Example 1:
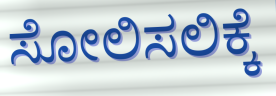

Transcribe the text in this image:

ಸೋಲಿಸಲಿಕ್ಕೆ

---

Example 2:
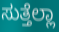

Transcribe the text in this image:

ಸುತ್ತೆಲ್ಲಾ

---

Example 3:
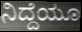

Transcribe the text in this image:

ನಿದ್ದೆಯೂ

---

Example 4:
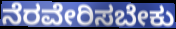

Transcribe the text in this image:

ನೆರವೇರಿಸಬೇಕು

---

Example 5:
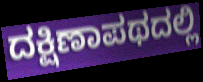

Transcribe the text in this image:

ದಕ್ಷಿಣಾಪಥದಲ್ಲಿ